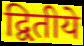
द्वितीये